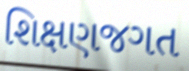
શિક્ષણજગત